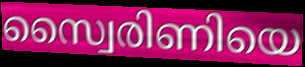
സ്വൈരിണിയെ